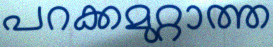
പറക്കമുറ്റാത്ത